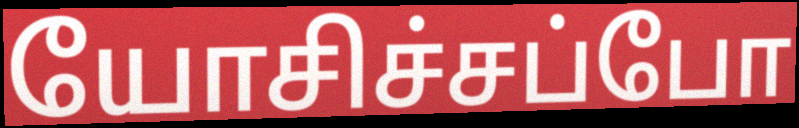
யோசிச்சப்போ